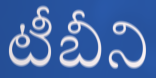
టీబీని